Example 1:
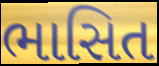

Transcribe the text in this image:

ભાસિત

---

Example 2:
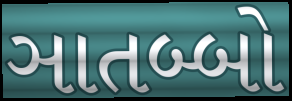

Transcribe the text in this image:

ઞાતબ્બો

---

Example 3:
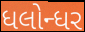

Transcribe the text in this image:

ધલોન્ધર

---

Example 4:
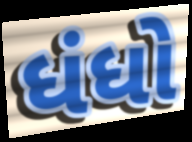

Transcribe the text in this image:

ધંધો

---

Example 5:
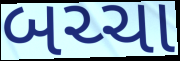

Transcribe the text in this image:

બચ્ચા